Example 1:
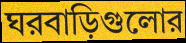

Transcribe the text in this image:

ঘরবাড়িগুলোর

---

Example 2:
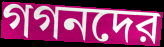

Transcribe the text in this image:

গগনদের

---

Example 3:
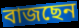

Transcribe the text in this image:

বাজছেন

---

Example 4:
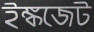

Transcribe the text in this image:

ইঙ্কজেট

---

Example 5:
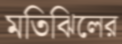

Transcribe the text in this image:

মতিঝিলের